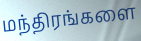
மந்திரங்களை